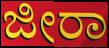
ಜೀರಾ